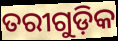
ତରୀଗୁଡ଼ିକ